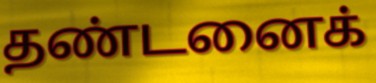
தண்டனைக்